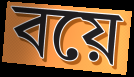
বয়ে